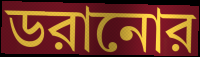
ডরানোর